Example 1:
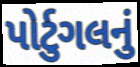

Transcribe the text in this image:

પોર્ટુગલનું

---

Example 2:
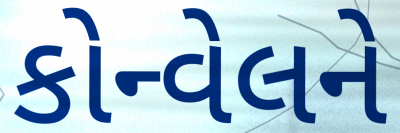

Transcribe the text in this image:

કોન્વેલને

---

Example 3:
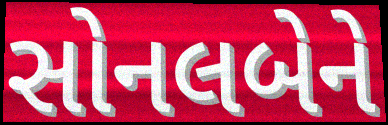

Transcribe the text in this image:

સોનલબેને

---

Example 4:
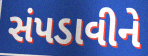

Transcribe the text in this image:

સંપડાવીને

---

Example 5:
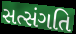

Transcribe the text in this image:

સત્સંગતિ